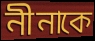
নীনাকে